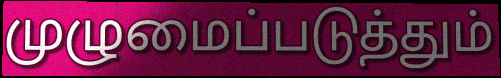
முழுமைப்படுத்தும்